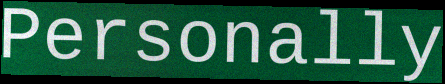
Personally